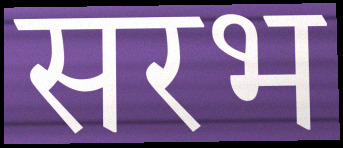
सरभ